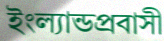
ইংল্যান্ডপ্রবাসী